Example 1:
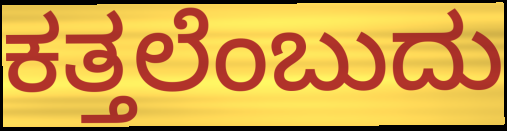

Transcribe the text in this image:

ಕತ್ತಲೆಂಬುದು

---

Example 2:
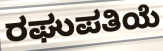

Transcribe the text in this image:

ರಘುಪತಿಯೆ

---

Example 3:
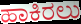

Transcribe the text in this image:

ಹಾಕಿರಲು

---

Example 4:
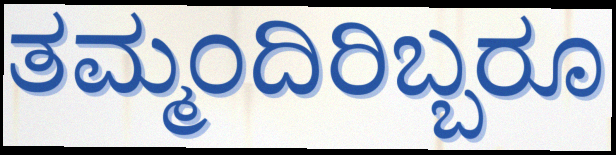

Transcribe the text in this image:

ತಮ್ಮಂದಿರಿಬ್ಬರೂ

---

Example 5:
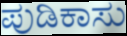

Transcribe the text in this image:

ಪುಡಿಕಾಸು